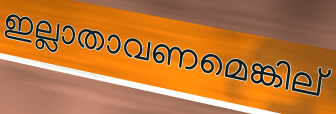
ഇല്ലാതാവണമെങ്കില്